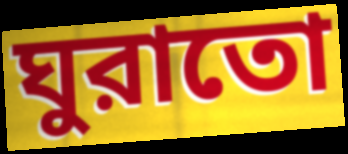
ঘুরাতো